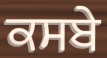
ਕਸਬੇ